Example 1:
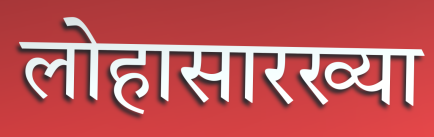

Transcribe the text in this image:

लोहासारख्या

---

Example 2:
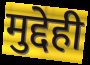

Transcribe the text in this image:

मुद्देही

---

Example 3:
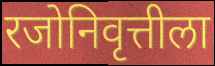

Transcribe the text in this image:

रजोनिवृत्तीला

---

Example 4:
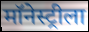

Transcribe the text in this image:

मॉनेस्ट्रीला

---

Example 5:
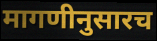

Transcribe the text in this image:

मागणीनुसारच